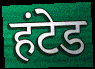
हंटेड